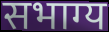
सभाग्य